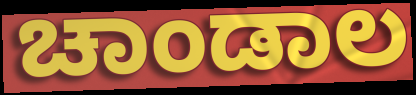
ಚಾಂಡಾಲ